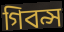
গিবন্স